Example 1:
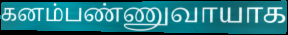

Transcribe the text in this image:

கனம்பண்ணுவாயாக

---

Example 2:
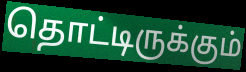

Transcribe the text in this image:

தொட்டிருக்கும்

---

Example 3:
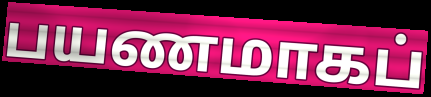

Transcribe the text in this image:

பயணமாகப்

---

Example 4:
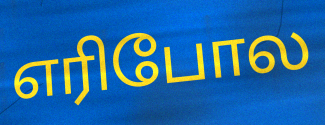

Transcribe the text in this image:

எரிபோல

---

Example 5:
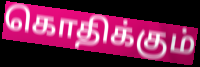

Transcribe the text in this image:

கொதிக்கும்